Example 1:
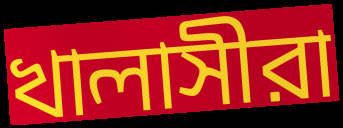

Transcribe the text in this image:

খালাসীরা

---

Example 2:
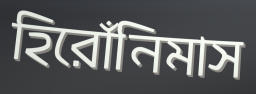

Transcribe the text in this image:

হিরোঁনিমাস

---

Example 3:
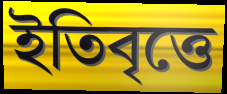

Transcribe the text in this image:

ইতিবৃত্তে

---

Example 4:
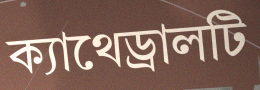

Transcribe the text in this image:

ক্যাথেড্রালটি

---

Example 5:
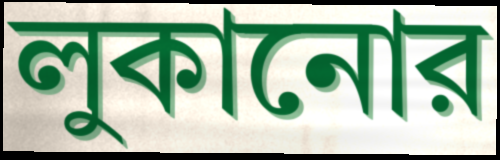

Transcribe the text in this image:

লুকানোর